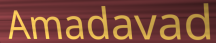
Amadavad